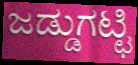
ಜಡ್ಡುಗಟ್ಟಿ